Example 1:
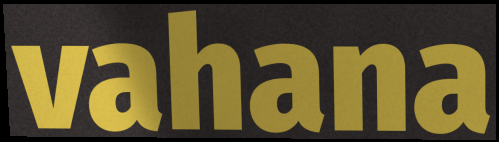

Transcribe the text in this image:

vahana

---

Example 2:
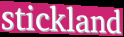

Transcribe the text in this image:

stickland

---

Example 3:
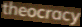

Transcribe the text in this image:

theocracy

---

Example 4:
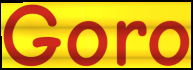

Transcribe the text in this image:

Goro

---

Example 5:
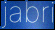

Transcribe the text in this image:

jabri